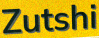
Zutshi